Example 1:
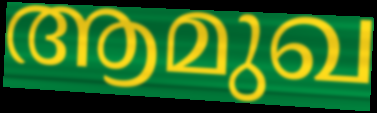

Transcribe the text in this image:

ആമുഖ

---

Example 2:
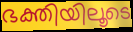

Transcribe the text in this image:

ഭക്തിയിലൂടെ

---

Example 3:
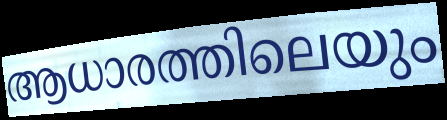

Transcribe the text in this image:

ആധാരത്തിലെയും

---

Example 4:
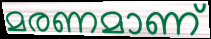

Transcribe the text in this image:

മരണമാണ്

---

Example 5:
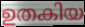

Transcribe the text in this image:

ഉതകിയ